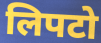
लिपटो